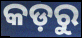
କଡ଼ରୁ